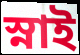
স্নাই